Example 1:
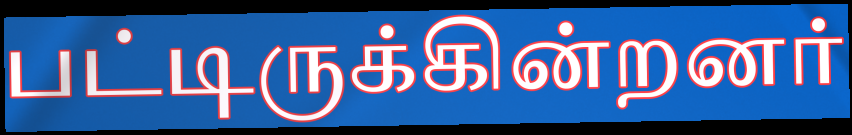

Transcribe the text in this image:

பட்டிருக்கின்றனர்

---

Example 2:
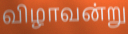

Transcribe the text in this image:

விழாவன்று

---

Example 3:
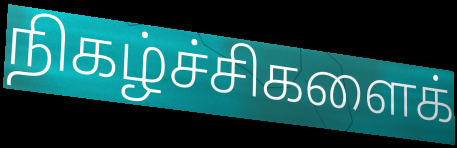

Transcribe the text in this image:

நிகழ்ச்சிகளைக்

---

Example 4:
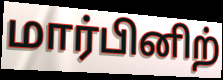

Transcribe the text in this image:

மார்பினிற்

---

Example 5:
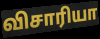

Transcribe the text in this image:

விசாரியா